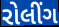
રોલીંગ